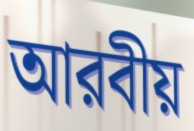
আরবীয়